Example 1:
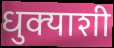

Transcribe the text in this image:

धुक्याशी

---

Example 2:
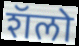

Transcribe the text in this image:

शॅलो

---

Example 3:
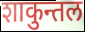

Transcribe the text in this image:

शाकुन्तल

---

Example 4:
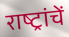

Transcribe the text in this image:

राष्ट्रांचें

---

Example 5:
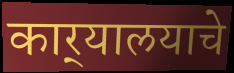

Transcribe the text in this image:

कार्यालयाचे